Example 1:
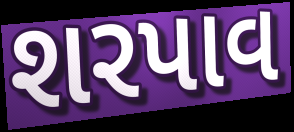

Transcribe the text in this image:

શરપાવ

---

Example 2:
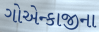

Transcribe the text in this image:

ગોએન્કાજીના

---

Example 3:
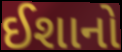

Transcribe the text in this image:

ઈશાનો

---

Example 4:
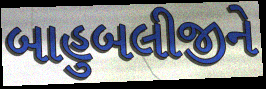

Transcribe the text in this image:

બાહુબલીજીને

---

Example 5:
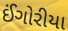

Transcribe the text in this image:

ઈંગોરીયા